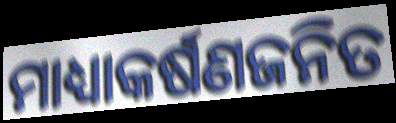
ମାଧ୍ୟାକର୍ଷଣଜନିତ